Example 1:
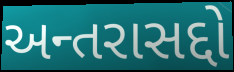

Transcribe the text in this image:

અન્તરાસદ્દો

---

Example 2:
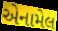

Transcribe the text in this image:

એનામેલ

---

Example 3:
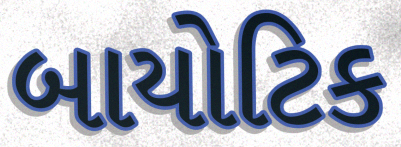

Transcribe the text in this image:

બાયોટિક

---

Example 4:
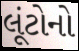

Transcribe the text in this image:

લૂંટોનો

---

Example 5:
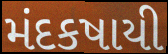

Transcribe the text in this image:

મંદકષાયી